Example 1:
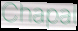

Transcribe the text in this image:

Chapal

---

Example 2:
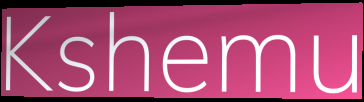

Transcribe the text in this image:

Kshemu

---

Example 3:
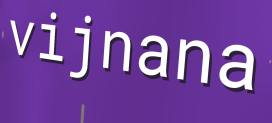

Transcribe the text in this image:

vijnana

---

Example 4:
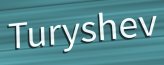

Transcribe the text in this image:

Turyshev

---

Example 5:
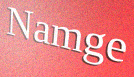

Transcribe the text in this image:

Namge